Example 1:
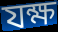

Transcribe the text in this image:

যক্ষ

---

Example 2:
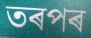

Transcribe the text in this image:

তৰপৰ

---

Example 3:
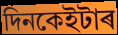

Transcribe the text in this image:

দিনকেইটাৰ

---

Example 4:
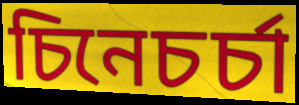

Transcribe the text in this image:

চিনেচৰ্চা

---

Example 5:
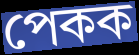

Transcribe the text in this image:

পেকক